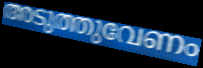
അടുത്തുവേണം